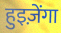
हुइज़ेंगा